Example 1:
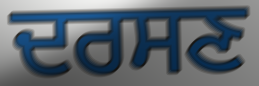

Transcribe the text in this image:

ਦਰਸਣ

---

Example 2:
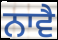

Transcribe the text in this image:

ਨਾਵੈ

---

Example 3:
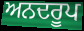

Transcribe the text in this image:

ਅਨਦਰੂਪ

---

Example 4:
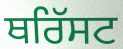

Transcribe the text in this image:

ਥਰਿੱਸਟ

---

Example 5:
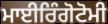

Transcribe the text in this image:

ਮਾਈਰਿੰਗੋਟੋਮੀ